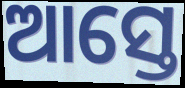
ଆସ୍ତେ